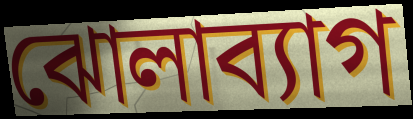
ঝোলাব্যাগ